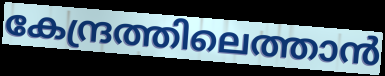
കേന്ദ്രത്തിലെത്താൻ